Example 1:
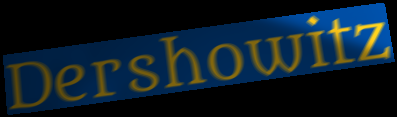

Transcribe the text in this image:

Dershowitz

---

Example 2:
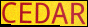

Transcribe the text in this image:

CEDAR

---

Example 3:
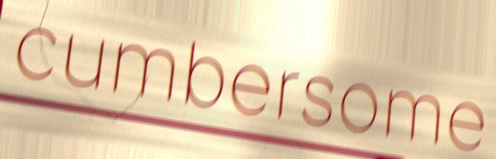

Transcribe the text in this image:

cumbersome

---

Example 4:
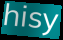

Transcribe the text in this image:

hisy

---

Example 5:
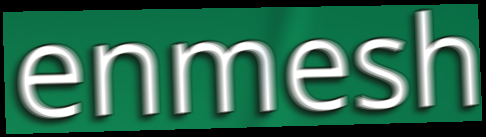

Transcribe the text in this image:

enmesh